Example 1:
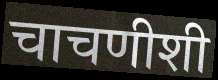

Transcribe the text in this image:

चाचणीशी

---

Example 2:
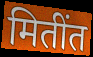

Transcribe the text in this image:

मितींत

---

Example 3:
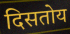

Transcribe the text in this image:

दिसतोय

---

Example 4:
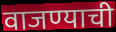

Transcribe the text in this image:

वाजण्याची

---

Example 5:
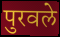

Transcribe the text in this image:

पुरवले